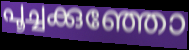
പൂച്ചക്കുഞ്ഞോ